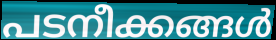
പടനീക്കങ്ങൾ